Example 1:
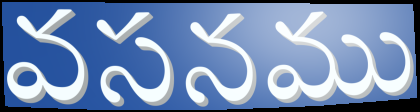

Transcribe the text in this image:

వసనము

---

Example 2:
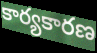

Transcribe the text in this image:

కార్యకారణ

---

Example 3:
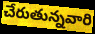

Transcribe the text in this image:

చేరుతున్నవారి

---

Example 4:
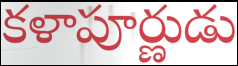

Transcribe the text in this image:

కళాపూర్ణుడు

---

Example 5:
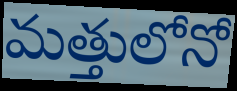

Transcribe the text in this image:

మత్తులోనో